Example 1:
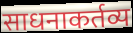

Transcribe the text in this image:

साधनाकर्तव्य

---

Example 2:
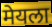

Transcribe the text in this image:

मेयला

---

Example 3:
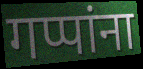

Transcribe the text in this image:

गप्पांना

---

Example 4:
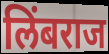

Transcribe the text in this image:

लिंबराज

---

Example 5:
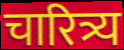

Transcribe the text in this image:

चारित्र्य